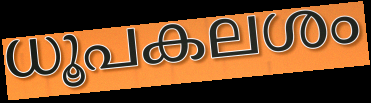
ധൂപകലശം